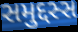
સમુદ્દસ્સ